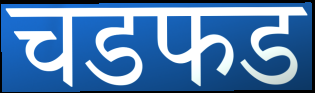
चडफड